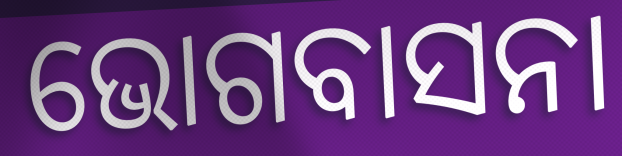
ଭୋଗବାସନା